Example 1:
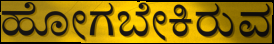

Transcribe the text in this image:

ಹೋಗಬೇಕಿರುವ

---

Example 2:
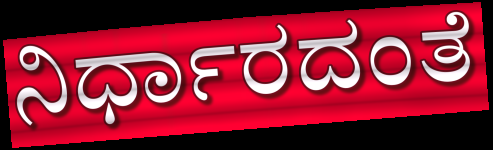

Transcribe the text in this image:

ನಿರ್ಧಾರದಂತೆ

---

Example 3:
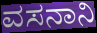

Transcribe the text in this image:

ವಸನಾನಿ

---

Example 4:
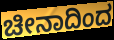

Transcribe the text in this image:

ಚೀನಾದಿಂದ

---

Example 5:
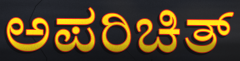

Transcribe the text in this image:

ಅಪರಿಚಿತ್